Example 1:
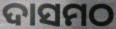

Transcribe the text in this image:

ଦାସମଠ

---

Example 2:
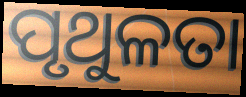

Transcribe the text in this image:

ପୃଥୁଳତା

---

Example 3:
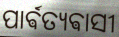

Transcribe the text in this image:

ପାର୍ଵତ୍ୟଵାସୀ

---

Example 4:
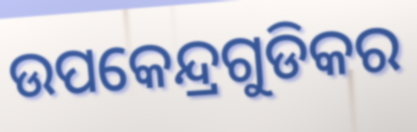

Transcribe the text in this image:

ଉପକେନ୍ଦ୍ରଗୁଡିକର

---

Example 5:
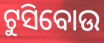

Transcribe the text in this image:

ଟୁସିବୋଉ